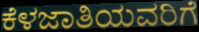
ಕೆಳಜಾತಿಯವರಿಗೆ